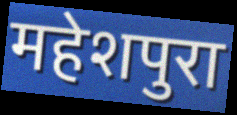
महेशपुरा